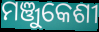
ମଞ୍ଜୁକେଶୀ